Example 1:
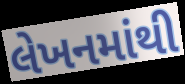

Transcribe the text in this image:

લેખનમાંથી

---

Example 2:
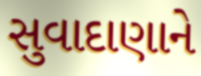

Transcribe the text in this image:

સુવાદાણાને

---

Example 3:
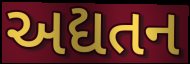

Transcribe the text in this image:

અદ્યતન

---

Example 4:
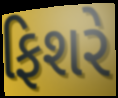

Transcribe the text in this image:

ફિશરે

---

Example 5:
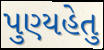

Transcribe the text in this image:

પુણ્યહેતુ